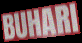
BUHARI